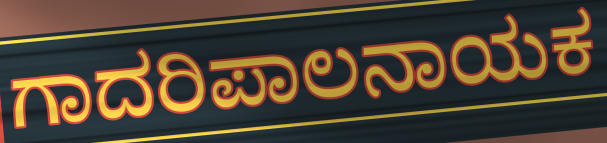
ಗಾದರಿಪಾಲನಾಯಕ